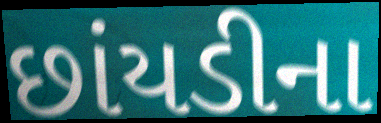
છાંયડીના